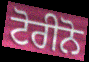
ਟੋਰੀਨੋ